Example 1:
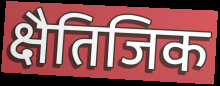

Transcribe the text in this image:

क्षैतिजिक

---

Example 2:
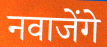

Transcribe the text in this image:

नवाजेंगे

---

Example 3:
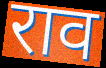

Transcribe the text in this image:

राव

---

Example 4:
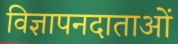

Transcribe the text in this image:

विज्ञापनदाताओं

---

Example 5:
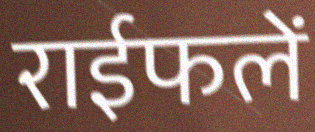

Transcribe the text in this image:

राईफलें